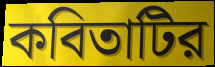
কবিতাটির